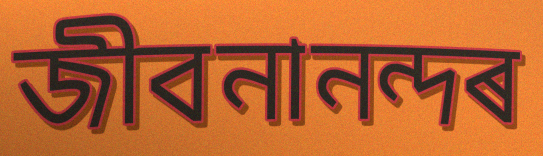
জীবনানন্দৰ